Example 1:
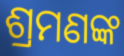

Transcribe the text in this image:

ଶ୍ରମଣଙ୍କ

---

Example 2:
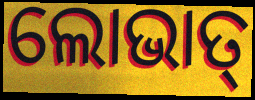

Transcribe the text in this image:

ଲୋଭାତ୍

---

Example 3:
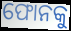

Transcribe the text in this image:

ଫୋନକୁ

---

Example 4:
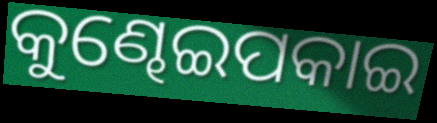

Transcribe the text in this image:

କୁଣ୍ଢେଇପକାଇ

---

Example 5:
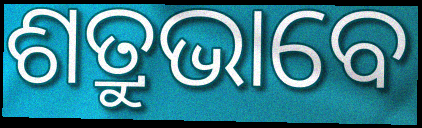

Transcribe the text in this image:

ଶତ୍ରୁଭାବେ